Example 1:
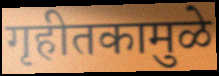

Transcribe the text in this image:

गृहीतकामुळे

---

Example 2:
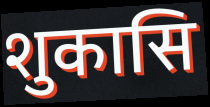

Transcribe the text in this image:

शुकासि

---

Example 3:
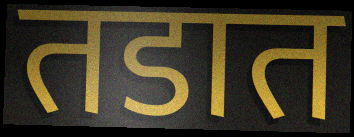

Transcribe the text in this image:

तडात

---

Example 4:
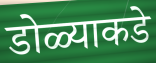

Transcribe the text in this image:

डोळ्याकडे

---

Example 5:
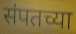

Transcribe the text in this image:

संपतच्या